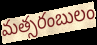
మత్సరంబులం